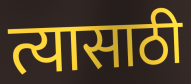
त्यासाठी